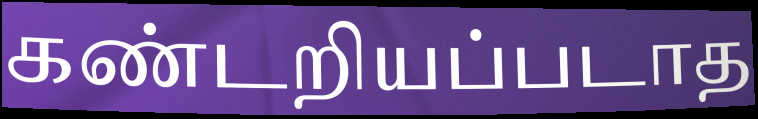
கண்டறியப்படாத